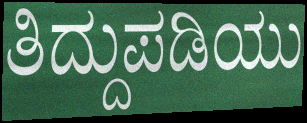
ತಿದ್ದುಪಡಿಯು